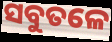
ସବୁତଳେ